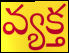
వ్యక్త